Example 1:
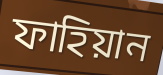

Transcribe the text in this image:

ফাহিয়ান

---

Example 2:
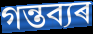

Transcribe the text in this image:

গন্তব্যৰ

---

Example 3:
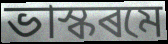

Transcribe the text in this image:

ভাস্কৰমে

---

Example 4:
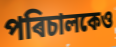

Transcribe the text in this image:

পৰিচালকেও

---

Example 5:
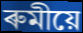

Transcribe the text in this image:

ৰুমীয়ে